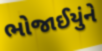
ભોજાઈયુંને